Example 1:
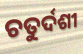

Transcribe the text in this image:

ଚତୁର୍ଦଶୀ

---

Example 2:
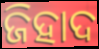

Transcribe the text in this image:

ଜିହାଦ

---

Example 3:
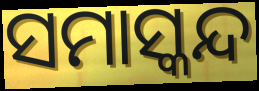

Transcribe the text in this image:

ସମାସ୍କନ୍ଦ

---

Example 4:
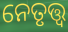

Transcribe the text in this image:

ନେତୃତ୍ତ୍ୱ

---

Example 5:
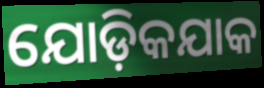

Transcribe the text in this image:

ଯୋଡ଼ିକଯାକ